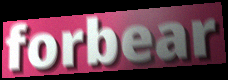
forbear